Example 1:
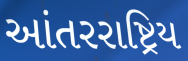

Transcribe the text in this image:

આંતરરાષ્ટ્રિય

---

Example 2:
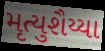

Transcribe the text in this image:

મૃત્યુશૈય્યા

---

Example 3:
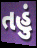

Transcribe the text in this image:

તહું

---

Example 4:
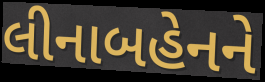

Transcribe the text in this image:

લીનાબહેનને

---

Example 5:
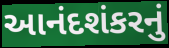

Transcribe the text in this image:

આનંદશંકરનું